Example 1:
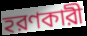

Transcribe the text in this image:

হরণকারী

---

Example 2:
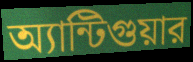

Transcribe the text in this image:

অ্যান্টিগুয়ার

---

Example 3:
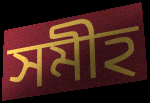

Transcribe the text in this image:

সমীহ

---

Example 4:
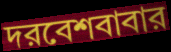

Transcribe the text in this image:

দরবেশবাবার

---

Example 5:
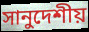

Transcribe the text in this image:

সানুদেশীয়